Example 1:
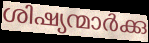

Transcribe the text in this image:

ശിഷ്യന്മാർക്കു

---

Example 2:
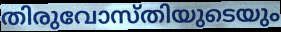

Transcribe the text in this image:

തിരുവോസ്തിയുടെയും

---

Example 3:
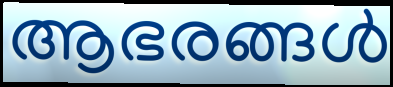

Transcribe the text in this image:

ആഭരങ്ങൾ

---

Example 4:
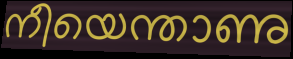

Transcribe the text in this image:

നീയെന്താണു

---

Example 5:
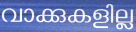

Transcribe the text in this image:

വാക്കുകളില്ല